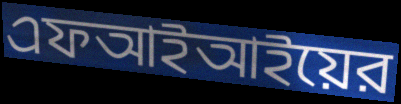
এফআইআইয়ের